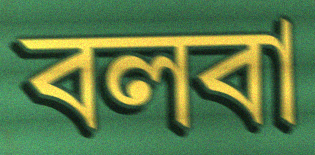
বলবা